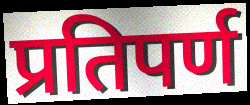
प्रतिपर्ण